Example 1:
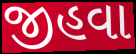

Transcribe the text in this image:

જીહવા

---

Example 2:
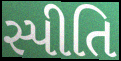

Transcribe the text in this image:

સ્પીતિ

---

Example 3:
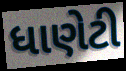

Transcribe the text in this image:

ધાણેટી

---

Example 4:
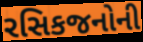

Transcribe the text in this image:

રસિકજનોની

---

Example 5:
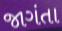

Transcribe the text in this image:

જાગંતા